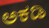
ಅಕಡಿ